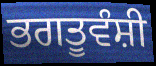
ਭਗਤੂਵੰਸ਼ੀ